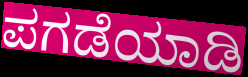
ಪಗಡೆಯಾಡಿ